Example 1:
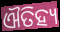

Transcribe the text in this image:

ଐତିହ୍ଯ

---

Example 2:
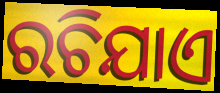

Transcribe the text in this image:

ରଚିଯାଏ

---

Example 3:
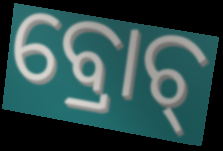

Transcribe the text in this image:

ବ୍ରୋଚ୍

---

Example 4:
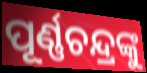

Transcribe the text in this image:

ପୂର୍ଣ୍ଣଚନ୍ଦ୍ରଙ୍କୁ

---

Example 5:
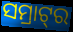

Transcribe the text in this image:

ସମ୍ରାଟ୍‌ର